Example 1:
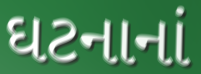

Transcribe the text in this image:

ઘટનાનાં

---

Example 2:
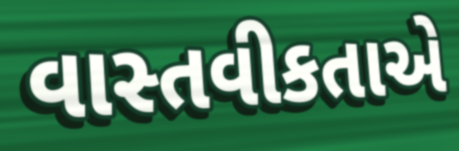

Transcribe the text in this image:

વાસ્તવીકતાએ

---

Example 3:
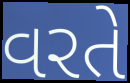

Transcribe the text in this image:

વરતે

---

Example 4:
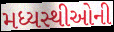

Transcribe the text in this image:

મધ્યસ્થીઓની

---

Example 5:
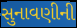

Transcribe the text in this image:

સુનાવણીની